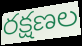
రక్షణల